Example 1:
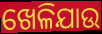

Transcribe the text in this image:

ଖେଳିଯାଉ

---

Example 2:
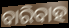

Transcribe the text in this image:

ବାରିବାହ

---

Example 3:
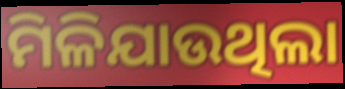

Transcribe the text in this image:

ମିଳିଯାଉଥିଲା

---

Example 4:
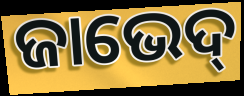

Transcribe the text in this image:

ଜାଭେଦ୍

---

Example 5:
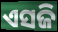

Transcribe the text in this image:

ଏସଜି